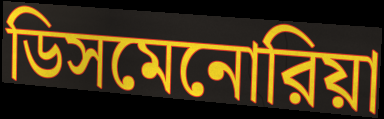
ডিসমেনোরিয়া